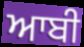
ਆਬੀ